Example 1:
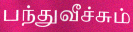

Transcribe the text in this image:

பந்துவீச்சும்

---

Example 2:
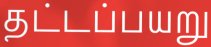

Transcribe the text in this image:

தட்டப்பயறு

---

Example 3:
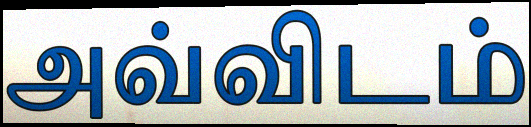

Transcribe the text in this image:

அவ்விடம்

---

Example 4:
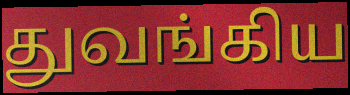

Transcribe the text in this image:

துவங்கிய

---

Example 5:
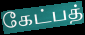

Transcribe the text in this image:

கேட்பத்